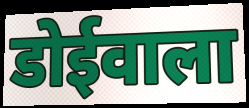
डोईवाला